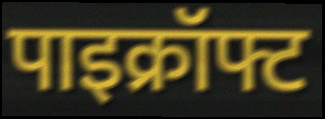
पाइक्रॉफ्ट